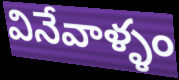
వినేవాళ్ళం